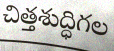
చిత్తశుద్ధిగల